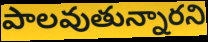
పాలవుతున్నారని